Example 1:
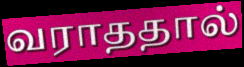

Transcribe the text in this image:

வராததால்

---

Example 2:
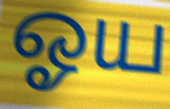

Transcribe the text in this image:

ஓய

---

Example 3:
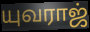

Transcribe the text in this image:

யுவராஜ்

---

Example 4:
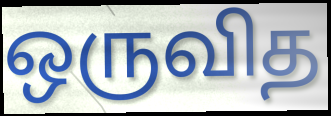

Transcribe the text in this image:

ஒருவித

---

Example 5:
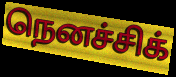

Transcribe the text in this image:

நெனச்சிக்